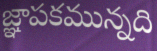
జ్ఞాపకమున్నది